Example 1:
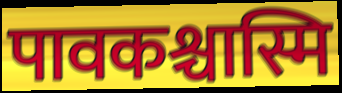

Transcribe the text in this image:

पावकश्चास्मि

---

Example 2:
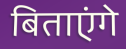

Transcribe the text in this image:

बिताएंगे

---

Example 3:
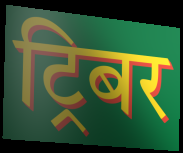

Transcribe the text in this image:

ट्रिबर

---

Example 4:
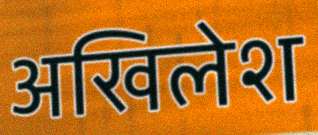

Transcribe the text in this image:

अखिलेश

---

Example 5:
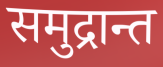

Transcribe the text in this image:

समुद्रान्त